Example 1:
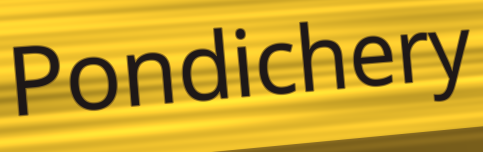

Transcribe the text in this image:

Pondichery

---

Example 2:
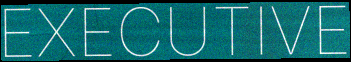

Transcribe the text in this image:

EXECUTIVE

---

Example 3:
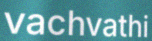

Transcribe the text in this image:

vachvathi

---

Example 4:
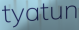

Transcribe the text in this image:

tyatun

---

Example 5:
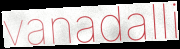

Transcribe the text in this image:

vanadalli